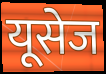
यूसेज